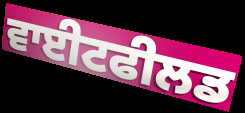
ਵਾਈਟਫੀਲਡ